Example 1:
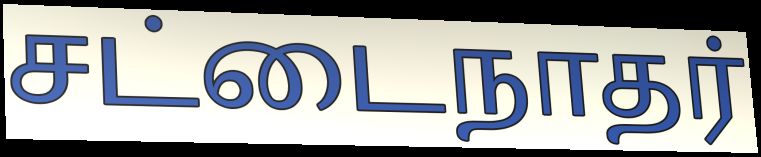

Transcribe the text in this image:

சட்டைநாதர்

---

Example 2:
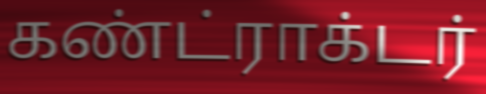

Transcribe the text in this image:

கண்ட்ராக்டர்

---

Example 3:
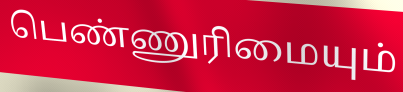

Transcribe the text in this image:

பெண்ணுரிமையும்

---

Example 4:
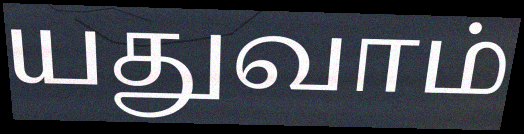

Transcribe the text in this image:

யதுவாம்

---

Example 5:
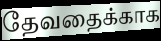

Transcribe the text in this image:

தேவதைக்காக